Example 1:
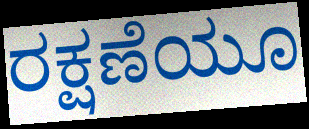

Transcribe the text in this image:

ರಕ್ಷಣೆಯೂ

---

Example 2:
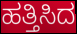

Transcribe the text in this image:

ಹತ್ತಿಸಿದ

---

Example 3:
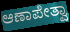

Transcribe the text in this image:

ಆಣಾಪೇತ್ವಾ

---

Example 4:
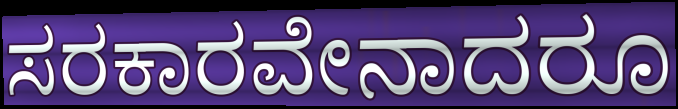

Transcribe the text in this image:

ಸರಕಾರವೇನಾದರೂ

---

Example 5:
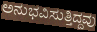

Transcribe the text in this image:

ಅನುಭವಿಸುತ್ತಿದ್ದವು